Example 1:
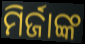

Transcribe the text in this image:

ମିର୍ଜାଙ୍କ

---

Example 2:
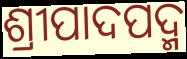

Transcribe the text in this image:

ଶ୍ରୀପାଦପଦ୍ମ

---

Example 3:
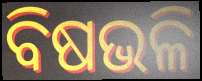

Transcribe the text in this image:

ବିଷଭଳି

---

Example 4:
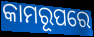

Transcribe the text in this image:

କାମରୂପରେ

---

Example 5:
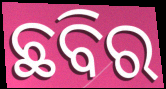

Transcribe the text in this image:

ଛବିର